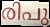
രിപു